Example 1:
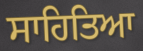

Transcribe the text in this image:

ਸਾਹਿਤਿਆ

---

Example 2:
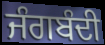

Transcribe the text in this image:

ਜੰਗਬੰਦੀ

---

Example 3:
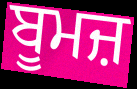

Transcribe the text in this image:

ਬੂਮਜ਼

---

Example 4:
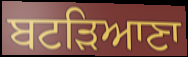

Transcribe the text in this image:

ਬਟੜਿਆਣਾ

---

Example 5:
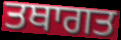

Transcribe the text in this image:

ਤਥਾਗਤ